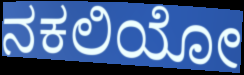
ನಕಲಿಯೋ